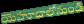
యెహూదాలోనుండి